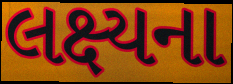
લક્ષ્યના